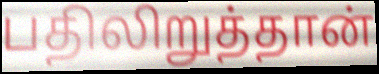
பதிலிறுத்தான்